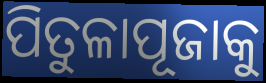
ପିତୁଳାପୂଜାକୁ